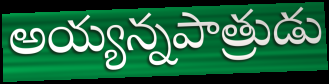
అయ్యన్నపాత్రుడు